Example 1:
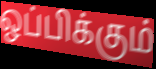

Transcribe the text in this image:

ஒப்பிக்கும்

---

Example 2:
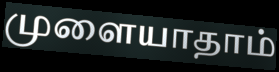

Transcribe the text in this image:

முளையாதாம்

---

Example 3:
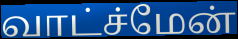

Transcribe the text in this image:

வாட்ச்மேன்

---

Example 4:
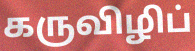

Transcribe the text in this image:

கருவிழிப்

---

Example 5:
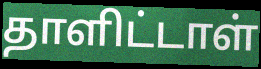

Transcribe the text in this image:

தாளிட்டாள்